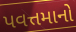
પવત્તમાનો